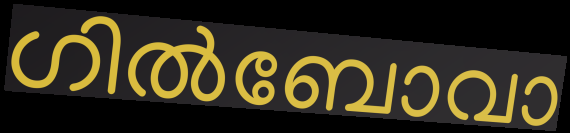
ഗിൽബോവാ